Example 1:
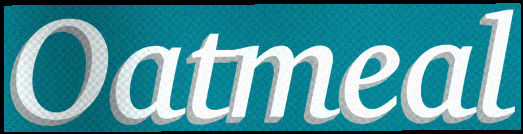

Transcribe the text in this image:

Oatmeal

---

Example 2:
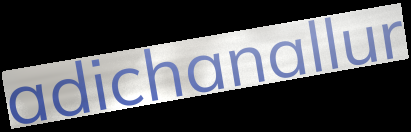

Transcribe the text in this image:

adichanallur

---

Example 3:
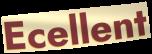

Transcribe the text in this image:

Ecellent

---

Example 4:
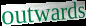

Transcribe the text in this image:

outwards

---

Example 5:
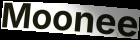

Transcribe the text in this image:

Moonee